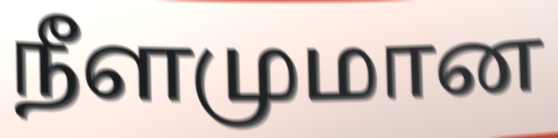
நீளமுமான